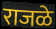
राजळे